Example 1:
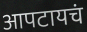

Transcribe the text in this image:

आपटायचं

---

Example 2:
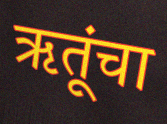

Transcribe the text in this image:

ऋतूंचा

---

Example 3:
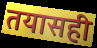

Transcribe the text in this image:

तयासही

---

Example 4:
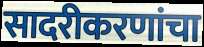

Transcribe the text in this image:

सादरीकरणांचा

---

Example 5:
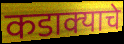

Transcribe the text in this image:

कडाक्याचे